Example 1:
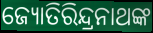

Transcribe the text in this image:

ଜ୍ୟୋତିରିନ୍ଦ୍ରନାଥଙ୍କ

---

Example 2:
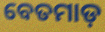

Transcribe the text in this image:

ବେତମାଡ଼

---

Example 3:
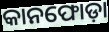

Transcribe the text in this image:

କାନଫୋଡ଼ା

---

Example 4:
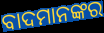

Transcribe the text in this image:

ବାଦମାନଙ୍କର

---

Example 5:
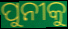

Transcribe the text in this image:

ପୁନୀକୁ